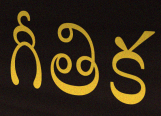
గీతిక